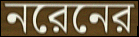
নরেনের